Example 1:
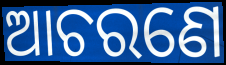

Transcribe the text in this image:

ଆଚରଣେ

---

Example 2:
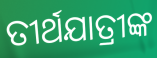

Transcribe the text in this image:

ତୀର୍ଥଯାତ୍ରୀଙ୍କ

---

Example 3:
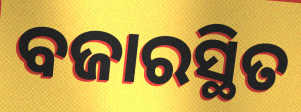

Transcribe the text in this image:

ବଜାରସ୍ଥିତ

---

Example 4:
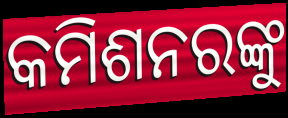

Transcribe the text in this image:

କମିଶନରଙ୍କୁ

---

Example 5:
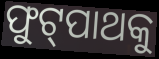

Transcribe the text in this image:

ଫୁଟ୍‌ପାଥକୁ